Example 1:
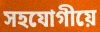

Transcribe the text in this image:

সহযোগীয়ে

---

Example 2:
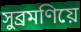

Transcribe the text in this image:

সুব্ৰমণিয়ে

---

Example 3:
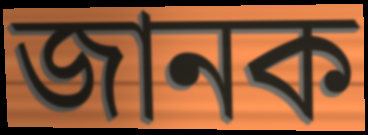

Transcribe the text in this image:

জানক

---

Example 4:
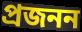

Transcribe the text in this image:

প্ৰজনন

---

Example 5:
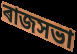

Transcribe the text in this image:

ৰাজসভা